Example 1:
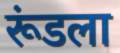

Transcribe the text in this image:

रूंडला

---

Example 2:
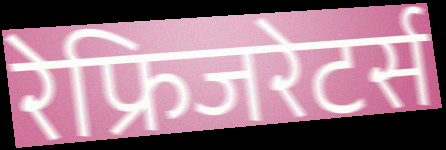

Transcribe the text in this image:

रेफ्रिजरेटर्स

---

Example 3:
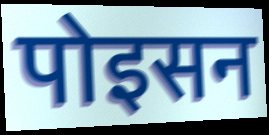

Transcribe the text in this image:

पोइसन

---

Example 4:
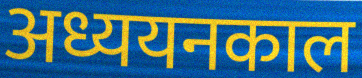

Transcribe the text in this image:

अध्ययनकाल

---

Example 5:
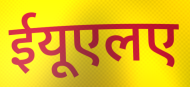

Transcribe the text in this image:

ईयूएलए